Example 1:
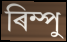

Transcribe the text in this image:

ৰিম্পু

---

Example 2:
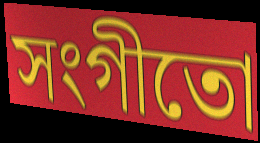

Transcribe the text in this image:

সংগীতো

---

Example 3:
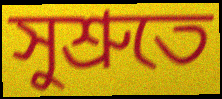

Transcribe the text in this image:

সুশ্ৰুতে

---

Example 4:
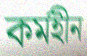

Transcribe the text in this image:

কৰ্মহীন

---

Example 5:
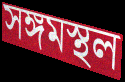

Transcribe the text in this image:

সঙ্গমস্থল